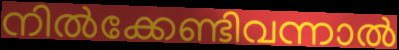
നിൽക്കേണ്ടിവന്നാൽ